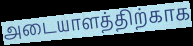
அடையாளத்திற்காக